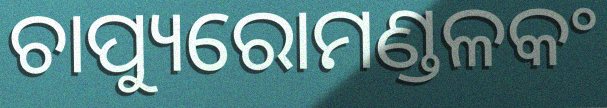
ଚାପ୍ୟୁରୋମଣ୍ଡଳକଂ